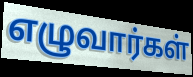
எழுவார்கள்